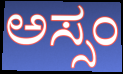
ಅಸ್ಸಂ